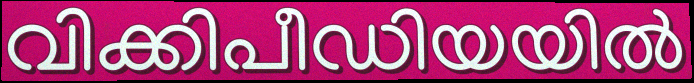
വിക്കിപീഡിയയിൽ